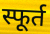
स्फूर्त